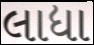
લાદ્યા